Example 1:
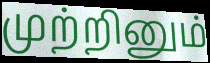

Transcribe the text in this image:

முற்றினும்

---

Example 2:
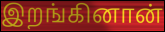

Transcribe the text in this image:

இறங்கினான்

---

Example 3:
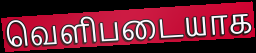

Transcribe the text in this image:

வெளிபடையாக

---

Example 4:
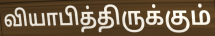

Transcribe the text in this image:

வியாபித்திருக்கும்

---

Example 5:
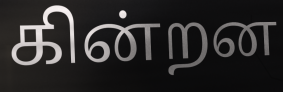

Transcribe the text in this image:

கின்றன